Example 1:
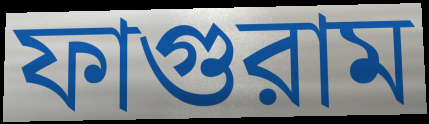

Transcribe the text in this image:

ফাগুরাম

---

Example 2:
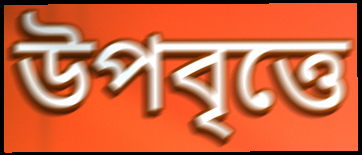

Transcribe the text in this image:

উপবৃত্তে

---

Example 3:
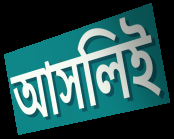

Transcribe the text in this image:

আসলিই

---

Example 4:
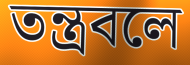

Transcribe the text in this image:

তন্ত্রবলে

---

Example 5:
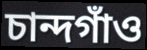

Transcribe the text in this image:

চান্দগাঁও